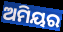
ଅମିୟର